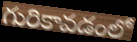
గురికావడంలో